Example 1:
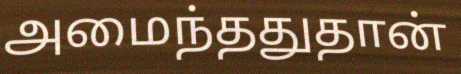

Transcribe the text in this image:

அமைந்ததுதான்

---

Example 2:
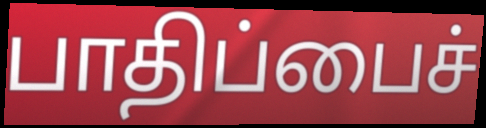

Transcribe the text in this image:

பாதிப்பைச்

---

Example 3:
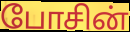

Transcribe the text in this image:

போசின்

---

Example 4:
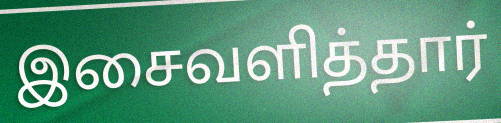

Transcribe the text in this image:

இசைவளித்தார்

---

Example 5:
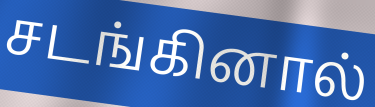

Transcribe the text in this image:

சடங்கினால்